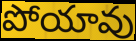
పోయావు